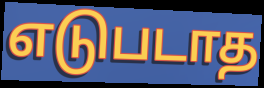
எடுபடாத